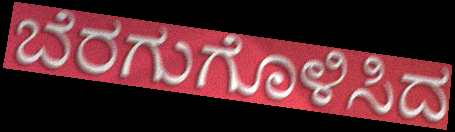
ಬೆರಗುಗೊಳಿಸಿದ